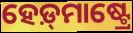
ହେଡ଼୍‍ମାଷ୍ଟ୍ରେ